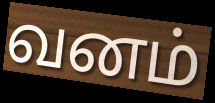
வனம்